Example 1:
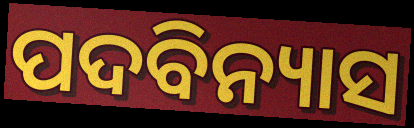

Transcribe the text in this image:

ପଦବିନ୍ୟାସ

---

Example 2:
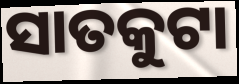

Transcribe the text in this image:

ସାତକୁଟା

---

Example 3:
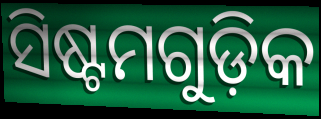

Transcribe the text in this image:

ସିଷ୍ଟମଗୁଡ଼ିକ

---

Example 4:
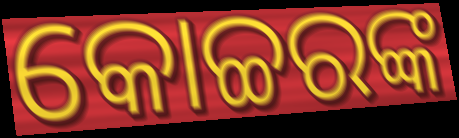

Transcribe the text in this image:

କୋଚ୍ଚରଙ୍କ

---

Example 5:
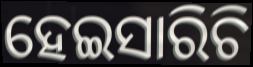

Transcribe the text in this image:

ହେଇସାରିଚି